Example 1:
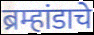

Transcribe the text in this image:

ब्रम्हांडाचे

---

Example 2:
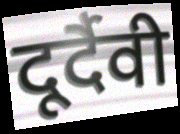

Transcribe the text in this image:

दूर्दैवी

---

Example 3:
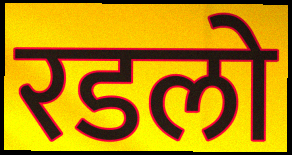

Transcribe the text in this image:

रडलो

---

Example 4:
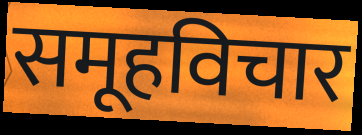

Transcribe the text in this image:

समूहविचार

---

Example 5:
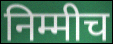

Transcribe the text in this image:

निम्मीच